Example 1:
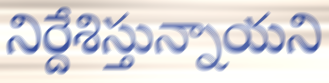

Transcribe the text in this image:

నిర్దేశిస్తున్నాయని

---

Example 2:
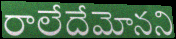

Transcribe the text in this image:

రాలేదేమోనని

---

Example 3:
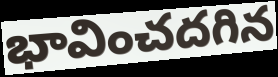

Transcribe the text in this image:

భావించదగిన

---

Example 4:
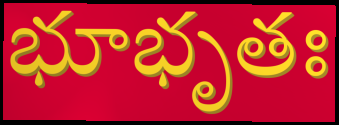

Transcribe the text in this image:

భూభృతః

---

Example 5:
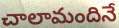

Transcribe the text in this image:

చాలామందినే